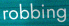
robbing